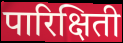
पारिक्षिती